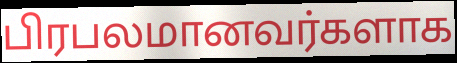
பிரபலமானவர்களாக